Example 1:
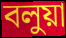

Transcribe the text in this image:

বলুয়া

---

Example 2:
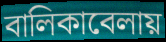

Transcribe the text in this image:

বালিকাবেলায়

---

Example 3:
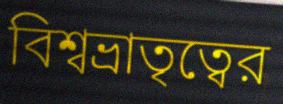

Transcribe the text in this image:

বিশ্বভ্রাতৃত্বের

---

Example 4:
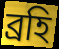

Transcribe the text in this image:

ব্রহি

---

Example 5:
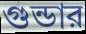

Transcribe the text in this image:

গুন্ডার